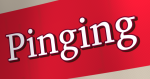
Pinging